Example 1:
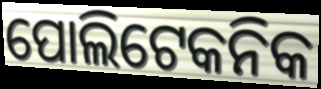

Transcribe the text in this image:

ପୋଲିଟେକନିକ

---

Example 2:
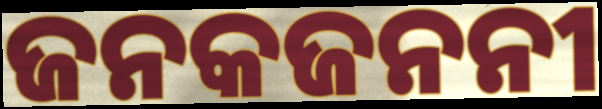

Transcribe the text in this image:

ଜନକଜନନୀ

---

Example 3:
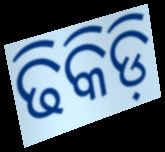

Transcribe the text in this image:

ଢିକିଡ଼ି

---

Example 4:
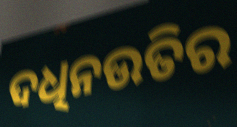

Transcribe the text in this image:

ଦଧିନଉତିର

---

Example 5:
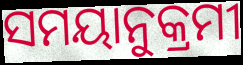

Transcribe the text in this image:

ସମୟାନୁକ୍ରମୀ